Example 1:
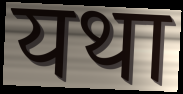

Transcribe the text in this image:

यथा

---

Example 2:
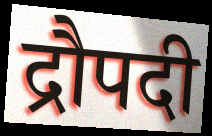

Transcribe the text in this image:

द्रौपदी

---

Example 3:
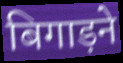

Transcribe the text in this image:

बिगाड़ने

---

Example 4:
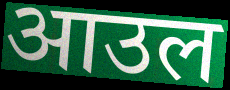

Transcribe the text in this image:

आउल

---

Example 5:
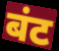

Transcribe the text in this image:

बंट